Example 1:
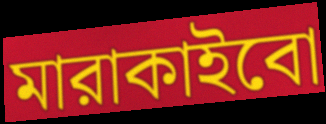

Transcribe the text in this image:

মারাকাইবো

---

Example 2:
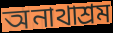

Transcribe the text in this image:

অনাথাশ্রম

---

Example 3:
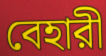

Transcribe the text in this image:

বেহারী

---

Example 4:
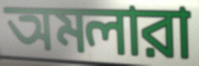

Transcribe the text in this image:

অমলারা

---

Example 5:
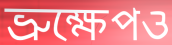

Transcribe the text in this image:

ভ্রুক্ষেপও